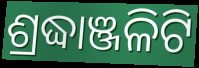
ଶ୍ରଦ୍ଧାଞ୍ଜଳିଟି